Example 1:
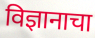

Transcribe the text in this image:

विज्ञानाचा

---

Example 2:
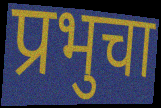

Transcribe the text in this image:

प्रभुचा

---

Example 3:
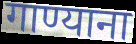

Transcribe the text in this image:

गाण्याना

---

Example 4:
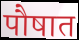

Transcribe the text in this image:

पौषात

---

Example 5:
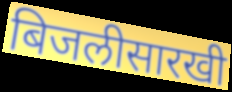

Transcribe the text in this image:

बिजलीसारखी